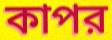
কাপর